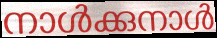
നാൾക്കുനാൾ